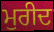
ਮੁਰੀਦ